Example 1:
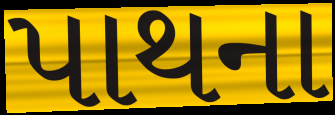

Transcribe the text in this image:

પાથના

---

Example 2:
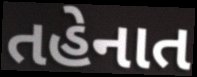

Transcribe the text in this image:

તહેનાત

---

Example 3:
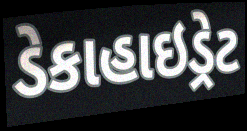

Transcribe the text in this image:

ડેકાહાઇડ્રેટ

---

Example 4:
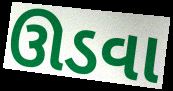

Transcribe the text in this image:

ઊડવા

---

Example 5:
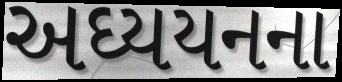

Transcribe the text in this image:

અઘ્યયનના